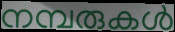
നമ്പരുകൾ